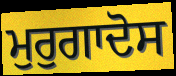
ਮੁਰੁਗਾਦੋਸ